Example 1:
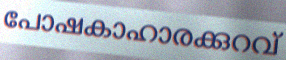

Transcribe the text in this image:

പോഷകാഹാരക്കുറവ്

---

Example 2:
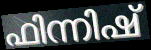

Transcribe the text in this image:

ഫിന്നിഷ്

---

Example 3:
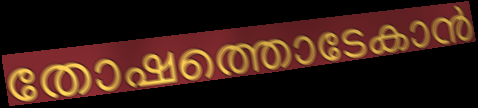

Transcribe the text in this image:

തോഷത്തൊടേകാൻ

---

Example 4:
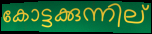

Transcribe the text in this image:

കോട്ടക്കുന്നില്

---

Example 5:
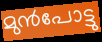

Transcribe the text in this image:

മുൻപോട്ടു